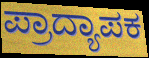
ಪ್ರಾದ್ಯಾಪಕ